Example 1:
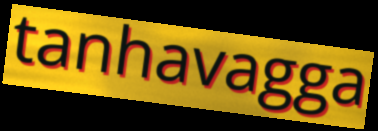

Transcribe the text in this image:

tanhavagga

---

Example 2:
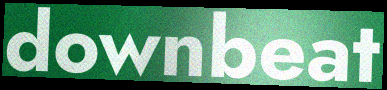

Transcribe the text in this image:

downbeat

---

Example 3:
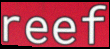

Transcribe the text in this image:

reef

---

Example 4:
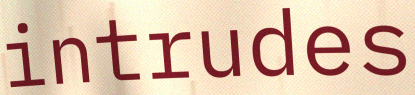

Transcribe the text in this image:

intrudes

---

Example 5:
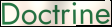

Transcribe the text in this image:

Doctrine